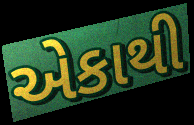
એકાથી